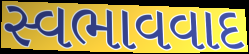
સ્વભાવવાદ